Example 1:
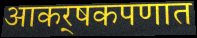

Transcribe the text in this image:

आकर्षकपणात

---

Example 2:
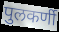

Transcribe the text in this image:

पुलकर्णी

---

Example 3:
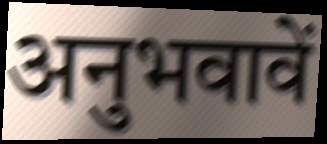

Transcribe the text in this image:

अनुभवावें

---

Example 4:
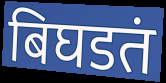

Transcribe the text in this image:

बिघडतं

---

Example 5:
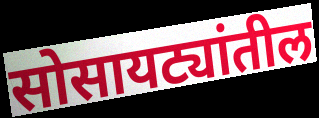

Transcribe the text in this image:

सोसायट्यांतील